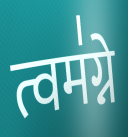
त्वम॑ग्ने